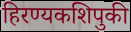
हिरण्यकशिपुकी